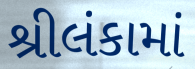
શ્રીલંકામાં